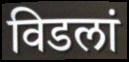
विडलां